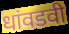
धांवडवी